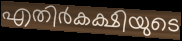
എതിർകക്ഷിയുടെ